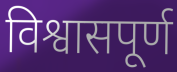
विश्वासपूर्ण